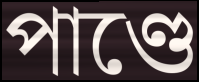
পাণ্ডে